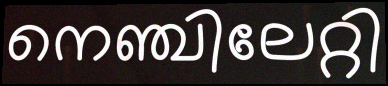
നെഞ്ചിലേറ്റി